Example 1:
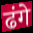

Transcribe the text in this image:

ढंगे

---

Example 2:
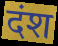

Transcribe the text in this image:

दंश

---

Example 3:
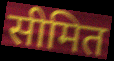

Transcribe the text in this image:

सीमित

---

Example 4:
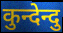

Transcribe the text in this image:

कुन्देन्दु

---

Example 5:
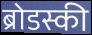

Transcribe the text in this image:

ब्रोडस्की